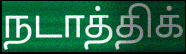
நடாத்திக்